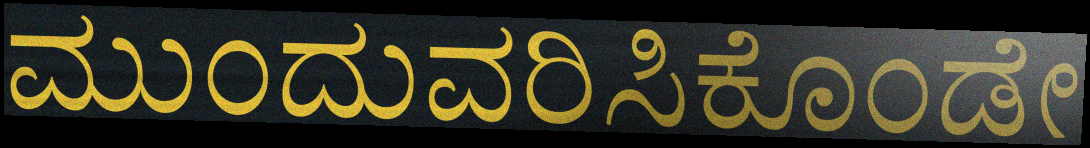
ಮುಂದುವರಿಸಿಕೊಂಡೇ